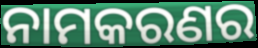
ନାମକରଣର